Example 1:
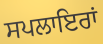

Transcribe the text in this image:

ਸਪਲਾਇਰਾਂ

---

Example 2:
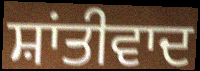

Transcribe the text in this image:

ਸ਼ਾਂਤੀਵਾਦ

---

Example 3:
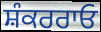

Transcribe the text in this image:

ਸ਼ੰਕਰਰਾਓ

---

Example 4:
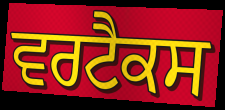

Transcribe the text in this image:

ਵਰਟੈਕਸ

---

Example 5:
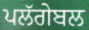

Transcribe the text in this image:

ਪਲੱਗੇਬਲ